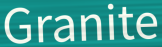
Granite